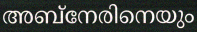
അബ്നേരിനെയും